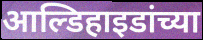
आल्डिहाइडांच्या